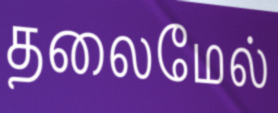
தலைமேல்